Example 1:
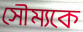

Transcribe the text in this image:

সৌম্যকে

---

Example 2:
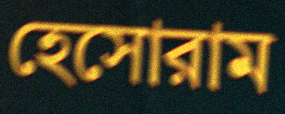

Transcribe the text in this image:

হেসোরাম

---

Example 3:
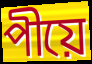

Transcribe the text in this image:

পীয়ে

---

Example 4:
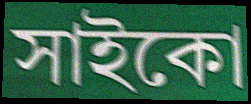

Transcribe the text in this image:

সাইকো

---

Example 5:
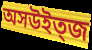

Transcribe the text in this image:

অসউইত্জ